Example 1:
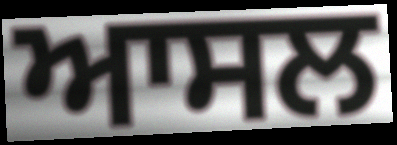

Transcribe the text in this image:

ਆਸਲ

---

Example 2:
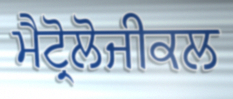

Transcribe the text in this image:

ਮੈਟ੍ਰੋਲੋਜੀਕਲ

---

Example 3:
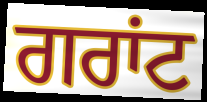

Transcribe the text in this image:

ਗਰਾਂਟ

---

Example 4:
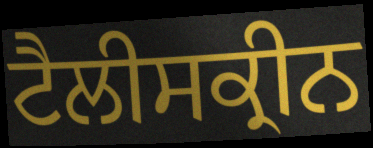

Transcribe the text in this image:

ਟੈਲੀਸਕ੍ਰੀਨ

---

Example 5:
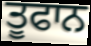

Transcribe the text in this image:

ਤੂਫਾਨ